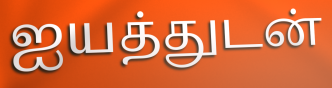
ஐயத்துடன்